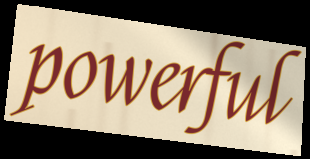
powerful